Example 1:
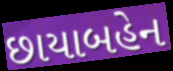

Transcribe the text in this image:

છાયાબહેન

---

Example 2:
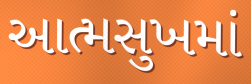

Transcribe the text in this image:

આત્મસુખમાં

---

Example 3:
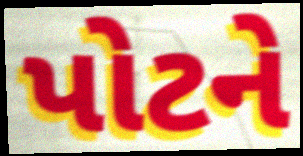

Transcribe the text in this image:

પોટને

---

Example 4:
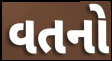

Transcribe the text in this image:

વતનો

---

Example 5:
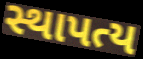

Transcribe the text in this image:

સ્થાપત્ય